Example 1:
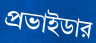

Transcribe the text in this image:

প্রভাইডার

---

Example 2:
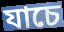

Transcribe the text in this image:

যাচে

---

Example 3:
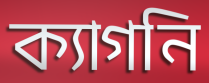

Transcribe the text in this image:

ক্যাগনি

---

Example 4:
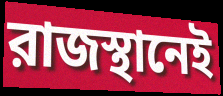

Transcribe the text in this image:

রাজস্থানেই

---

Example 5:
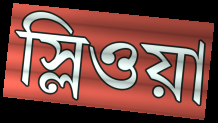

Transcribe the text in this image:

স্লিওয়া